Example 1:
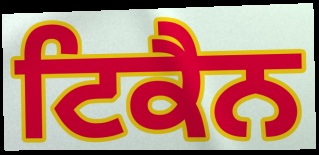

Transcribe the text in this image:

ਟਿਕੈਨ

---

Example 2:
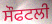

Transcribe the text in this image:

ਸੌਫਟਲੀ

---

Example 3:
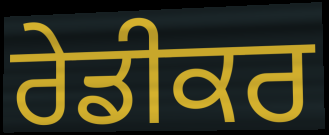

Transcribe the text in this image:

ਰੇਡੀਕਰ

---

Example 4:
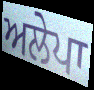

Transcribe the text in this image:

ਅਲੇਪਾ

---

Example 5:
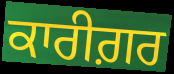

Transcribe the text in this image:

ਕਾਰੀਗ਼ਰ